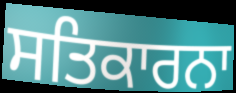
ਸਤਿਕਾਰਨਾ